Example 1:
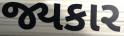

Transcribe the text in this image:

જ્યકાર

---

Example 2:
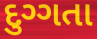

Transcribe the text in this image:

દુગ્ગતા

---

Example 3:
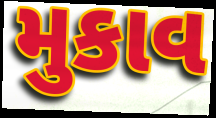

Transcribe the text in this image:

મુકાવ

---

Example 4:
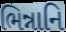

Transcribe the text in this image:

ભિન્નાનિ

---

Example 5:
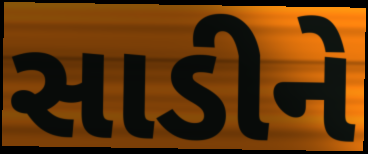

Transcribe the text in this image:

સાડીને